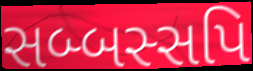
સબ્બસ્સપિ